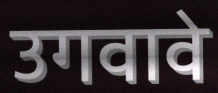
उगवावे